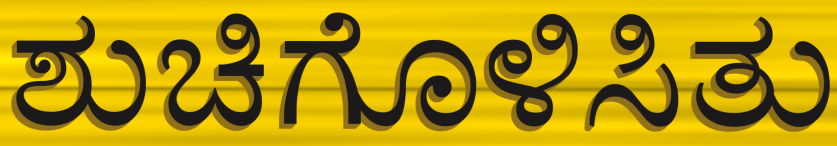
ಶುಚಿಗೊಳಿಸಿತು